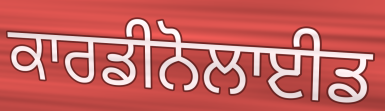
ਕਾਰਡੀਨੋਲਾਈਡ